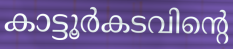
കാട്ടൂർകടവിന്റെ